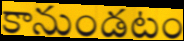
కానుండటం